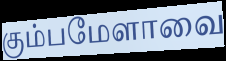
கும்பமேளாவை